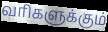
வரிகளுக்கும்